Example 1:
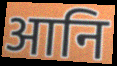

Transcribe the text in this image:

आनि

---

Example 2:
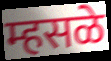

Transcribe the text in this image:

म्हसळे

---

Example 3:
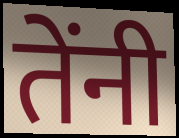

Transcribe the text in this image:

तेंनी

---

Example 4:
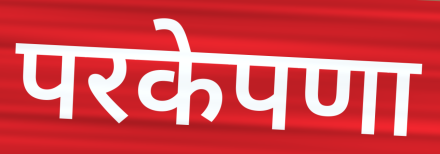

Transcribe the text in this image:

परकेपणा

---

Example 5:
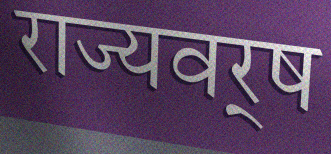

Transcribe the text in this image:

राज्यवर्ष